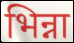
भिन्ना